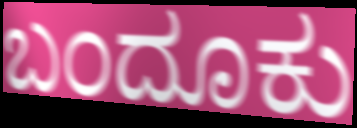
ಬಂದೂಕು